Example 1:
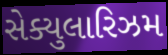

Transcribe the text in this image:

સેક્યુલારિઝમ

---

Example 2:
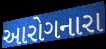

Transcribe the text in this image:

આરોગનારા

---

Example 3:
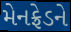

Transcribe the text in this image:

મેનફ્રેડને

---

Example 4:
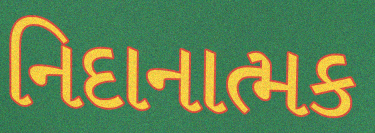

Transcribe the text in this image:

નિદાનાત્મક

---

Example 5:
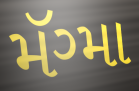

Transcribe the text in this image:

મૅગ્મા